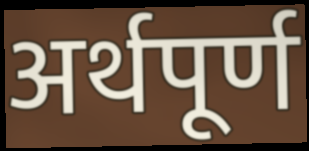
अर्थपूर्ण